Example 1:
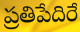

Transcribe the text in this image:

ప్రతిపేదిరే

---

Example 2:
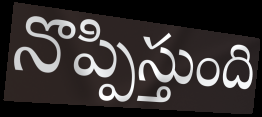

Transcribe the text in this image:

నొప్పిస్తుంది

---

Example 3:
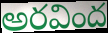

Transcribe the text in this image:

అరవింద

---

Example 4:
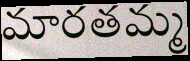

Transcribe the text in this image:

మారతమ్మ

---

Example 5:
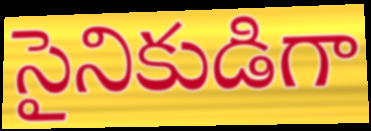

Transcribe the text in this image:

సైనికుడిగా